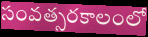
సంవత్సరకాలంలో